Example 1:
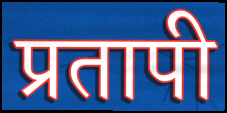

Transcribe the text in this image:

प्रतापी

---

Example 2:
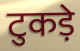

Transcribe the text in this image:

टुकड़े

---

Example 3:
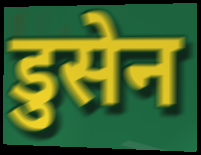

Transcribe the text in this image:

डुसेन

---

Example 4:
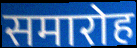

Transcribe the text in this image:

समारोह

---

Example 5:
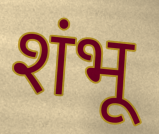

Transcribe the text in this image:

शंभू